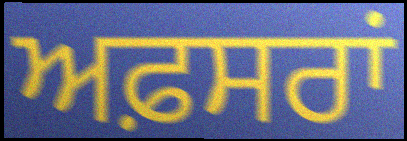
ਅਫ਼ਸਰਾਂ